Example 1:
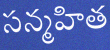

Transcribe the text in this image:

సన్మహిత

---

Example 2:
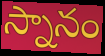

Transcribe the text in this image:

స్నానం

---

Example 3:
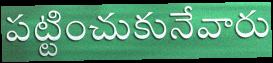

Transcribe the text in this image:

పట్టించుకునేవారు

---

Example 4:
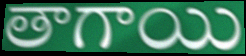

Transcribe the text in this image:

తాగాయి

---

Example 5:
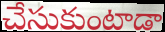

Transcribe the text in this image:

చేసుకుంటాడా